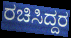
ರಚಿಸಿದ್ದರ